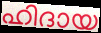
ഹിദായ